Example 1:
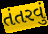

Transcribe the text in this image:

તંતરવું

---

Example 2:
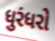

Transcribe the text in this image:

ધુરંધરો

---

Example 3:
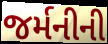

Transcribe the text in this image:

જર્મનીની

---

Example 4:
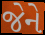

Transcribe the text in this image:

જેને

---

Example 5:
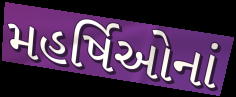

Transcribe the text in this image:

મહર્ષિઓનાં